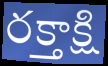
రక్తాక్షి